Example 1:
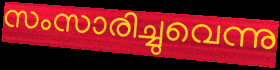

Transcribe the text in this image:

സംസാരിച്ചുവെന്നു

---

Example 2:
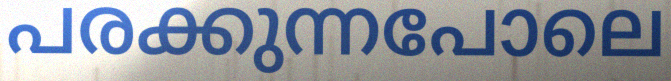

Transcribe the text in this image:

പരക്കുന്നപോലെ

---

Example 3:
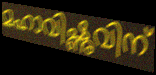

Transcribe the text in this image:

മഹാവിഷ്ണുവിന്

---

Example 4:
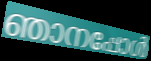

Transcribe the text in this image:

ഞാനപ്പോൾ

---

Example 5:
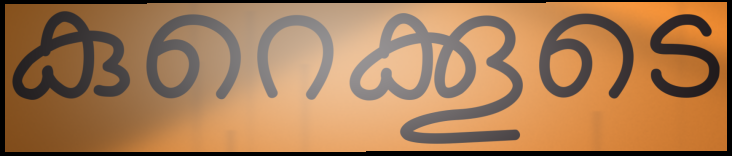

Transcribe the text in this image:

കുറെക്കൂടെ